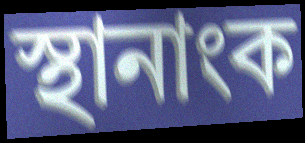
স্থানাংক